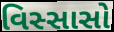
વિસ્સાસો